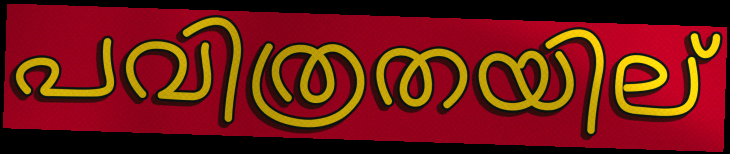
പവിത്രതയില്